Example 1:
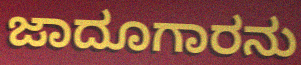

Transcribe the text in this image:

ಜಾದೂಗಾರನು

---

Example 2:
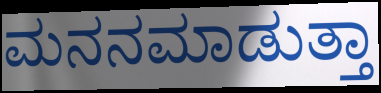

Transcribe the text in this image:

ಮನನಮಾಡುತ್ತಾ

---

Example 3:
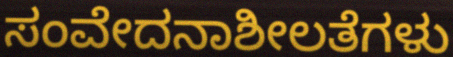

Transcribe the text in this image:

ಸಂವೇದನಾಶೀಲತೆಗಳು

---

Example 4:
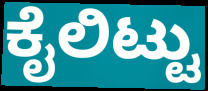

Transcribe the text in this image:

ಕೈಲಿಟ್ಟು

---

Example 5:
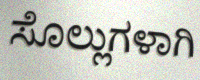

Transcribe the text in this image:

ಸೊಲ್ಲುಗಳಾಗಿ